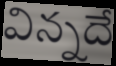
విన్నదే